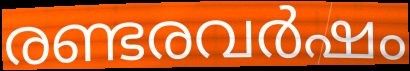
രണ്ടരവർഷം